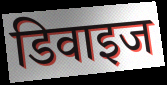
डिवाइज